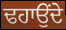
ਢਹਾਉਂਦੇ